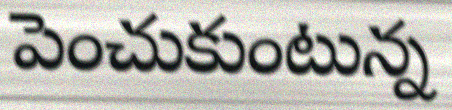
పెంచుకుంటున్న